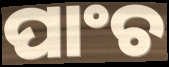
ପାଂଚ